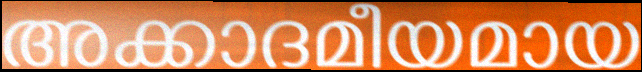
അക്കാദമീയമായ